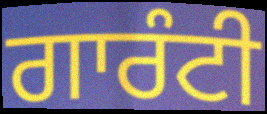
ਗਾਰੰਟੀ